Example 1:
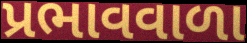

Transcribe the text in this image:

પ્રભાવવાળા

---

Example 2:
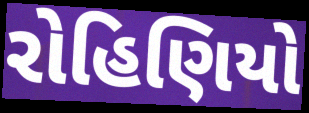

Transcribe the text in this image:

રોહિણિયો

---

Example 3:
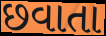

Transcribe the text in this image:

છવાતા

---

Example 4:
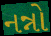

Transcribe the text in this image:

નન્નો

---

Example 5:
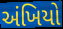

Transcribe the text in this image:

અંખિયો